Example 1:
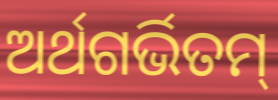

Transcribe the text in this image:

ଅର୍ଥଗର୍ଭିତମ୍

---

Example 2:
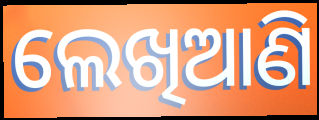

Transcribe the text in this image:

ଲେଖିଆଣି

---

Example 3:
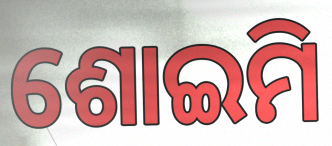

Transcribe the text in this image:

ଶୋଇମି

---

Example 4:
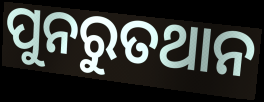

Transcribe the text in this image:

ପୁନରୁତଥାନ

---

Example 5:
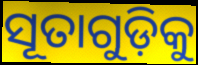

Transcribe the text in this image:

ସୂତାଗୁଡ଼ିକୁ